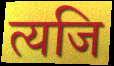
त्यजि